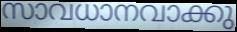
സാവധാനവാക്കു